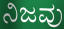
ನಿಜವು